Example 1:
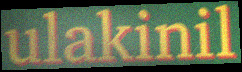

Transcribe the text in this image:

ulakinil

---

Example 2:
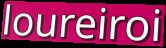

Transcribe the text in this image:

loureiroi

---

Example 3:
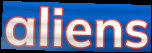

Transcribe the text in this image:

aliens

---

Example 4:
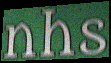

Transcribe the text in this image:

nhs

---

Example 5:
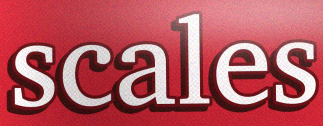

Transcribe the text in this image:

scales